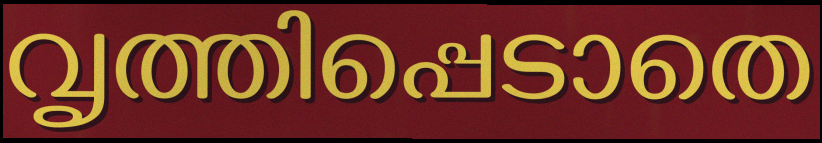
വൃത്തിപ്പെടാതെ